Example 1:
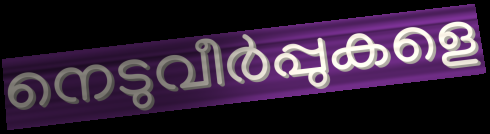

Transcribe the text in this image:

നെടുവീർപ്പുകളെ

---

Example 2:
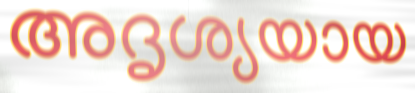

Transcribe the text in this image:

അദൃശ്യയായ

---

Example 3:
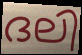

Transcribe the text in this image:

ദലി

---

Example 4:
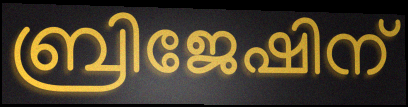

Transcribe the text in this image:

ബ്രിജേഷിന്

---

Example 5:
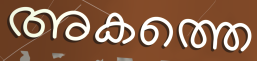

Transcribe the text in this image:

അകത്തെ